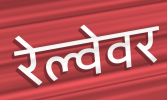
रेल्वेवर